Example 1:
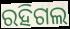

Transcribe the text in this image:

ରହିଗଲ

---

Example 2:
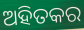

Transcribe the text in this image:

ଅହିତକର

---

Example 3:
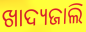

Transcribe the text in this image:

ଖାଦ୍ୟଜାଲି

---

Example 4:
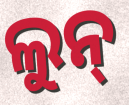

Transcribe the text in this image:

ଲୁନ୍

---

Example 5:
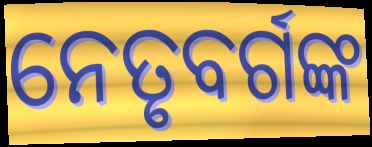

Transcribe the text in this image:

ନେତୃବର୍ଗଙ୍କ